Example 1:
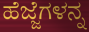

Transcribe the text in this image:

ಹೆಜ್ಜೆಗಳನ್ನ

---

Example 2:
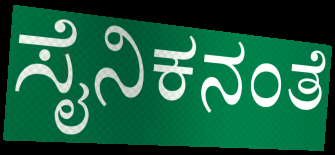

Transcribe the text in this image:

ಸೈನಿಕನಂತೆ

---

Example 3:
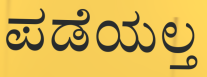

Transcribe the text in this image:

ಪಡೆಯಲ್ತ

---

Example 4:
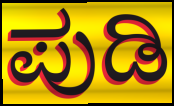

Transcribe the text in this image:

ಪುಡಿ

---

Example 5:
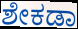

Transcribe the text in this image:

ಶೇಕಡಾ